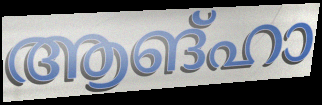
ആങ്ഹാ